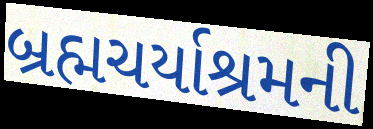
બ્રહ્મચર્યાશ્રમની